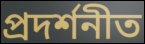
প্ৰদৰ্শনীত